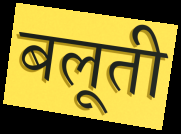
बलूती